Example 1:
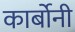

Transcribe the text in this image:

कार्बोनी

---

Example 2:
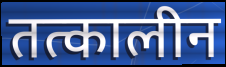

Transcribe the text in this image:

तत्कालीन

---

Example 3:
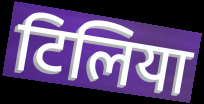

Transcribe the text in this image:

टिलिया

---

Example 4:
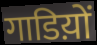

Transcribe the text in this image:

गाडिय़ों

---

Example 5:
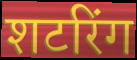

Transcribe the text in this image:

शटरिंग